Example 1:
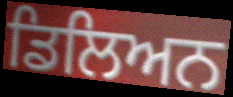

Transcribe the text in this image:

ਡਿਲਿਅਨ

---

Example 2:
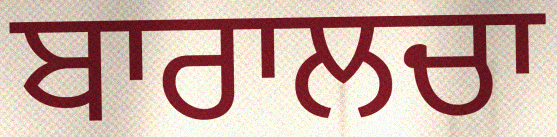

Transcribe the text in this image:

ਬਾਰਾਲਚਾ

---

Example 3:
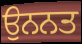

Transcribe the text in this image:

ਉਨਨਤ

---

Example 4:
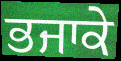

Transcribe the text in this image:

ਭਜਾਕੇ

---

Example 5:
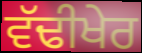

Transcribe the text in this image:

ਵੱਢੀਖੇਰ